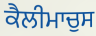
ਕੈਲੀਮਾਚੁਸ